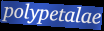
polypetalae